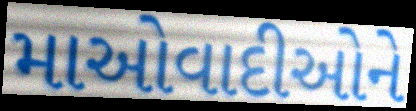
માઓવાદીઓને